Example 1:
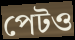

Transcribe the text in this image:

পেটও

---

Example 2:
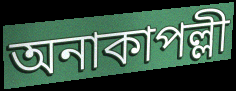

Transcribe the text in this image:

অনাকাপল্লী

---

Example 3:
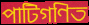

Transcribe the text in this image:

পাটিগণিত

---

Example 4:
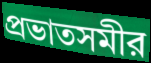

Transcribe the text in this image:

প্রভাতসমীর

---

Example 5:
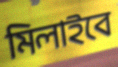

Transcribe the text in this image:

মিলাইবে